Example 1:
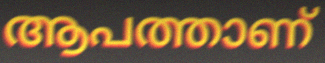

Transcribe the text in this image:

ആപത്താണ്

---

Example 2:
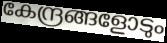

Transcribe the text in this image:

കേന്ദ്രങ്ങളോടും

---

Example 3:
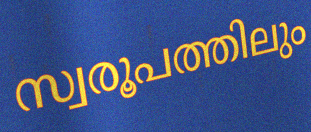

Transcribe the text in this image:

സ്വരൂപത്തിലും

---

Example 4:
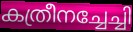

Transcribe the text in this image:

കത്രീനച്ചേച്ചി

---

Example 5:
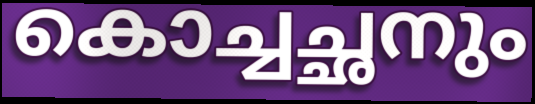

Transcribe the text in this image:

കൊച്ചച്ഛനും